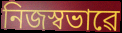
নিজস্বভাৱে